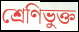
শ্রেণিভুক্ত